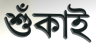
শুঁকাই